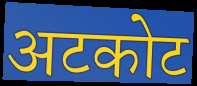
अटकोट